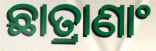
ଛାତ୍ରାଣାଂ